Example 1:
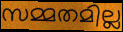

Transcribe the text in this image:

സമ്മതമില്ല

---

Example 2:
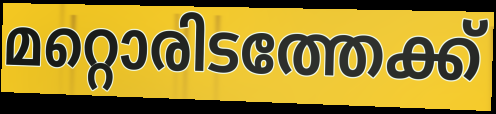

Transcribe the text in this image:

മറ്റൊരിടത്തേക്ക്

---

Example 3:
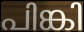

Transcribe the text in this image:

പിങ്കി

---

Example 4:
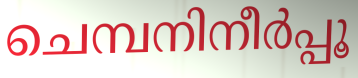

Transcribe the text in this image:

ചെമ്പനിനീർപ്പൂ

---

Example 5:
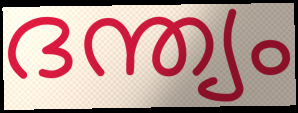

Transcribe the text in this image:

ദന്ത്യം